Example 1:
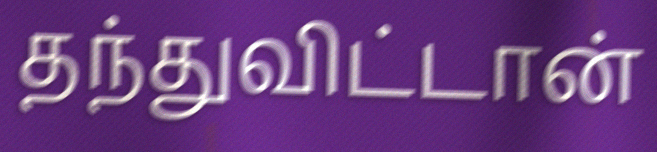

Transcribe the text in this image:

தந்துவிட்டான்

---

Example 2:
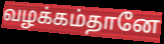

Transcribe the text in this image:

வழக்கம்தானே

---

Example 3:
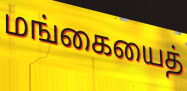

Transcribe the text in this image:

மங்கையைத்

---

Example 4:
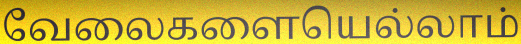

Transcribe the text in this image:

வேலைகளையெல்லாம்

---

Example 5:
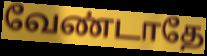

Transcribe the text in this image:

வேண்டாதே